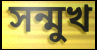
সন্মুখ